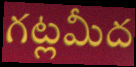
గట్లమీద